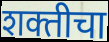
शक्‍तीचा